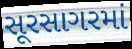
સૂરસાગરમાં